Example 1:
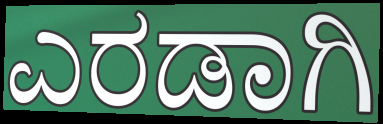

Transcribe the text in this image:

ಎರಡಾಗಿ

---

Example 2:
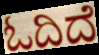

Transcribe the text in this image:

ಓದಿದೆ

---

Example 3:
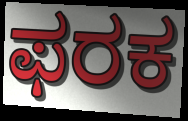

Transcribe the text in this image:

ಫರಕ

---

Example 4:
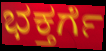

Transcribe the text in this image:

ಭಕ್ತರ್ಗೆ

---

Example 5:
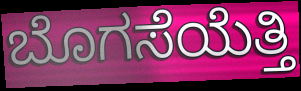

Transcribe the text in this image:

ಬೊಗಸೆಯೆತ್ತಿ